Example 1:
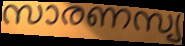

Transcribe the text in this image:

സാരണസ്യ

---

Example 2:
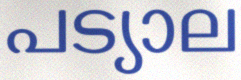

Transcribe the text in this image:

പട്യാല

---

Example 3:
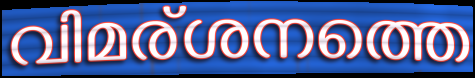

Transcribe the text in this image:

വിമര്ശനത്തെ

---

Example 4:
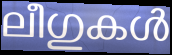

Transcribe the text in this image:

ലീഗുകൾ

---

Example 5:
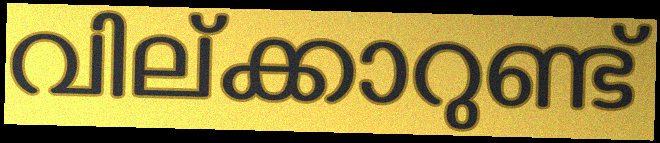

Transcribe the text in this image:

വില്ക്കാറുണ്ട്